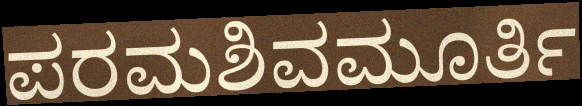
ಪರಮಶಿವಮೂರ್ತಿ